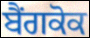
ਬੈਂਗਕੋਕ